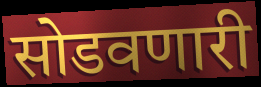
सोडवणारी